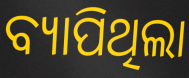
ବ୍ୟାପିଥିଲା